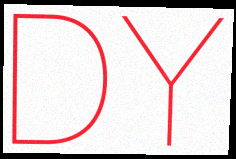
DY